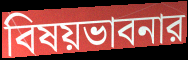
বিষয়ভাবনার